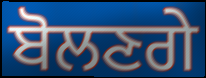
ਬੋਲਣਗੇ